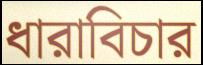
ধারাবিচার